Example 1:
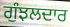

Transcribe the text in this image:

ਗੁੰਝਲਦਾਰ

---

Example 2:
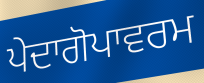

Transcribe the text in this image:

ਪੇਦਾਗੋਪਾਵਰਮ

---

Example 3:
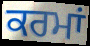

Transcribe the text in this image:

ਕਰਮਾਂ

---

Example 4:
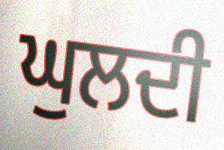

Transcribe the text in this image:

ਘੁਲਦੀ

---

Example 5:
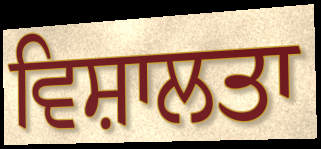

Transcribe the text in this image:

ਵਿਸ਼ਾਲਤਾ